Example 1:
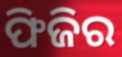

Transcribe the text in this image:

ଫିଜିର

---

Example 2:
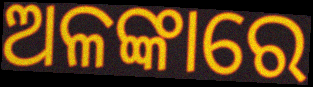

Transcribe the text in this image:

ଅଳଙ୍କାରେ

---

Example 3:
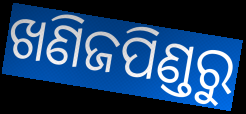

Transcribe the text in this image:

ଖଣିଜପିଣ୍ଡରୁ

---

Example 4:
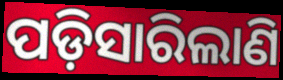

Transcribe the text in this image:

ପଡ଼ିସାରିଲାଣି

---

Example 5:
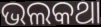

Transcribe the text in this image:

ଭଲକଥା